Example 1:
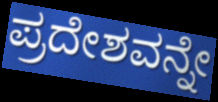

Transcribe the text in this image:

ಪ್ರದೇಶವನ್ನೇ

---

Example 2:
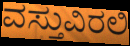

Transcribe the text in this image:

ವಸ್ತುವಿರಲಿ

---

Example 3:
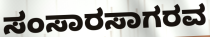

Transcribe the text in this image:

ಸಂಸಾರಸಾಗರವ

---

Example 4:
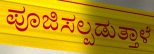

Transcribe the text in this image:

ಪೂಜಿಸಲ್ಪಡುತ್ತಾಳೆ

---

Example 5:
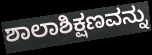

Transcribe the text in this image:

ಶಾಲಾಶಿಕ್ಷಣವನ್ನು